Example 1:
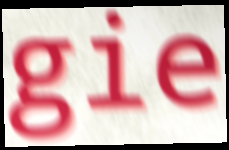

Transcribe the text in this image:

gie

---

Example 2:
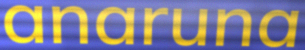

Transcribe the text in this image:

anaruna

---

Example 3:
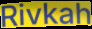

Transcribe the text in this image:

Rivkah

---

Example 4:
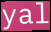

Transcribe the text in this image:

yal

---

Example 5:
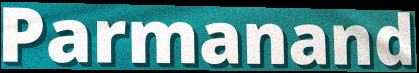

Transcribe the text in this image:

Parmanand